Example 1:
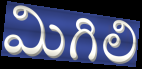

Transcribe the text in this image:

మిగిలి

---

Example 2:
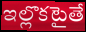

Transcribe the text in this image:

ఇల్లొకటైతే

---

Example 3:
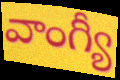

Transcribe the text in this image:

వాంగ్యీ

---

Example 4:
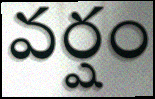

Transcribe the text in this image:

వర్షం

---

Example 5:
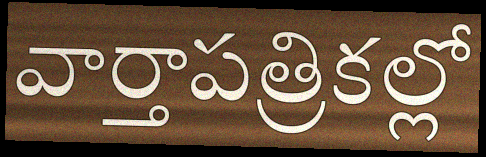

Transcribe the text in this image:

వార్తాపత్రికల్లో